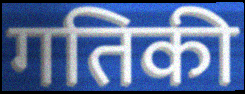
गतिकी